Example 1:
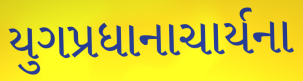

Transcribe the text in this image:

યુગપ્રધાનાચાર્યના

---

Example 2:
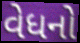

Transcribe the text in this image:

વેધનો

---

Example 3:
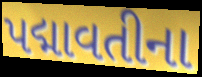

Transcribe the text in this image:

પદ્માવતીના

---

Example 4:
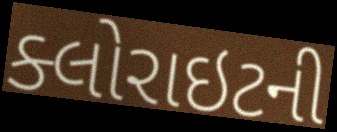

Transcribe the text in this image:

ક્લોરાઇટની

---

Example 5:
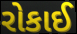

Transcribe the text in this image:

રોકાઈ